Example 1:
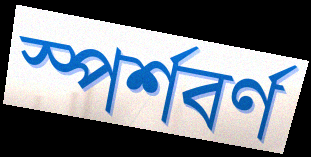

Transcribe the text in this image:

স্পৰ্শবৰ্ণ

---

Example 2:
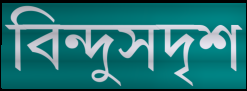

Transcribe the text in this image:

বিন্দুসদৃশ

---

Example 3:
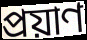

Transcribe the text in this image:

প্ৰয়াণ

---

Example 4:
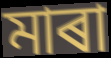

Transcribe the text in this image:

মাৰা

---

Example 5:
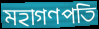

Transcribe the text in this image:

মহাগণপতি